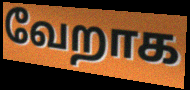
வேறாக